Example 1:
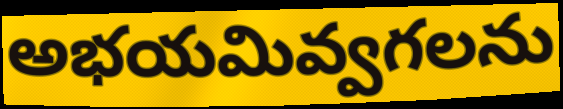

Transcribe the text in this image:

అభయమివ్వగలను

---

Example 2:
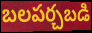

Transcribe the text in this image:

బలపర్చబడి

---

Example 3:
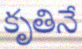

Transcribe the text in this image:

కృతినే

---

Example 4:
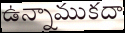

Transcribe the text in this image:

ఉన్నాముకదా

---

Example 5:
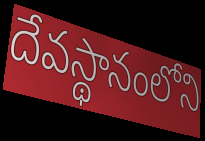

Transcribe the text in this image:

దేవస్థానంలోని